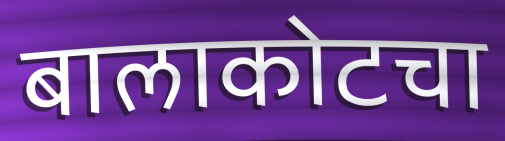
बालाकोटचा